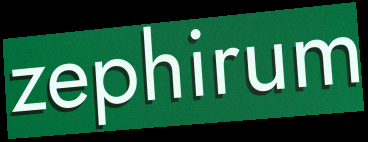
zephirum